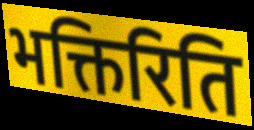
भक्तिरिति